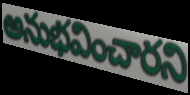
అనుభవించారని